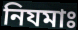
নিযমাঃ